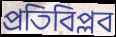
প্রতিবিপ্লব